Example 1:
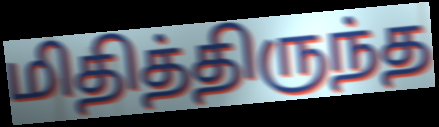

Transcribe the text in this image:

மிதித்திருந்த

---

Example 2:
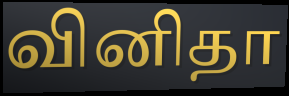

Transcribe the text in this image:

வினிதா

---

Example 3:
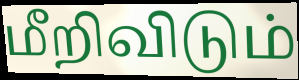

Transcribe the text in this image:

மீறிவிடும்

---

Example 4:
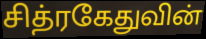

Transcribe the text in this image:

சித்ரகேதுவின்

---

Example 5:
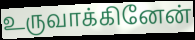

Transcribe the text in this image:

உருவாக்கினேன்